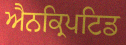
ਐਨਕ੍ਰਿਪਟਿਡ